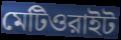
মেটিওরাইট